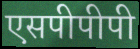
एसपीपीपी